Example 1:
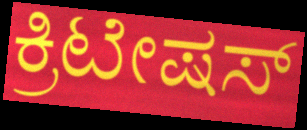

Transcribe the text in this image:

ಕ್ರಿಟೇಷಸ್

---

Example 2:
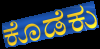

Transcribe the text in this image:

ಕೊಡೆಕು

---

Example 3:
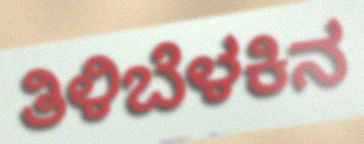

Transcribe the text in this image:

ತಿಳಿಬೆಳಕಿನ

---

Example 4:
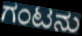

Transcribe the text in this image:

ಗಂಟನು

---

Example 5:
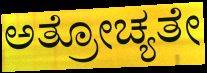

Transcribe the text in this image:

ಅತ್ರೋಚ್ಯತೇ